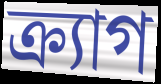
ক্র্যাগ